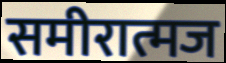
समीरात्मज